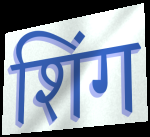
शिंग